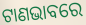
ଟାଣଭାବରେ